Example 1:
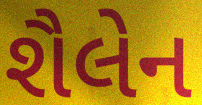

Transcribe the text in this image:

શૈલેન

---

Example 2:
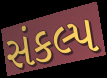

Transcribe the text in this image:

સંકલ્પ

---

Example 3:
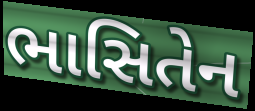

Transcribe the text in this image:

ભાસિતેન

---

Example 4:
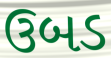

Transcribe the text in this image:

ઉબડ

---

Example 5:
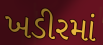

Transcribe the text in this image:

ખડીરમાં